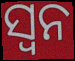
ସ୍ୱନ